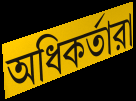
অধিকর্তারা